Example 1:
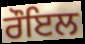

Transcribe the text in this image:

ਰੌਇਲ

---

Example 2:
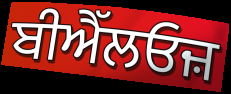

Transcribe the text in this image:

ਬੀਐੱਲਓਜ਼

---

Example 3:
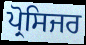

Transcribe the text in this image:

ਪ੍ਰੋਸਿਜਰ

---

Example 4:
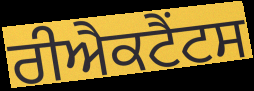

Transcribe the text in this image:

ਰੀਐਕਟੈਂਟਸ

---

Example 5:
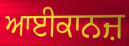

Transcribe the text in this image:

ਆਈਕਾਨਜ਼